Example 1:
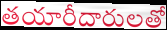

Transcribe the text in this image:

తయారీదారులతో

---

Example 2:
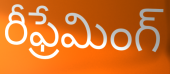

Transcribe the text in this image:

రీఫ్రేమింగ్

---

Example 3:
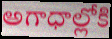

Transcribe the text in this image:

అగాధాల్లోకి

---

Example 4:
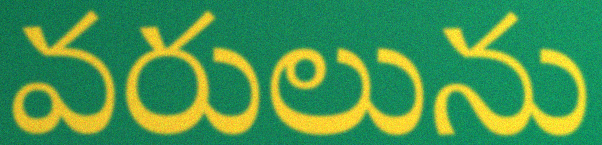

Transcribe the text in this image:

వరులును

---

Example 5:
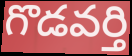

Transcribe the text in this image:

గొడవర్తి